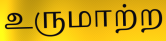
உருமாற்ற